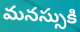
మనస్సుకి